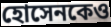
হোসেনকেও